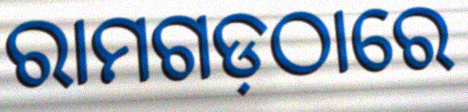
ରାମଗଡ଼ଠାରେ